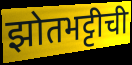
झोतभट्टीची